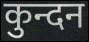
कुन्‍दन